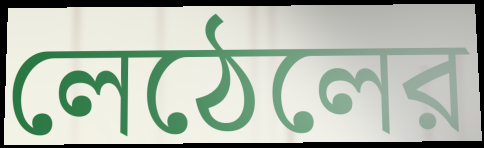
লেঠেলের